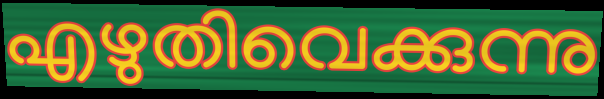
എഴുതിവെക്കുന്നു